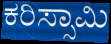
ಕರಿಸ್ಸಾಮಿ